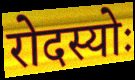
रोदस्योः